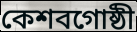
কেশবগোষ্ঠী